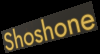
Shoshone